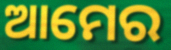
ଆମେର